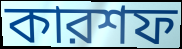
কারশফ